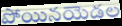
పోయినయెడల